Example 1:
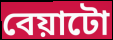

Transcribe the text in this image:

বেয়াটো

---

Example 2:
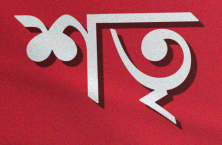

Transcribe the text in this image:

শতৃ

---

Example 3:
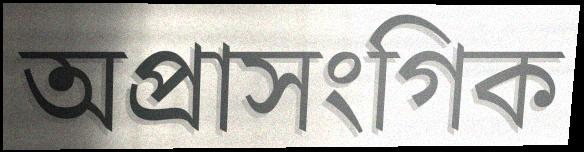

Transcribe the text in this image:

অপ্ৰাসংগিক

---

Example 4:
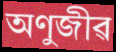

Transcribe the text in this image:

অণুজীৱ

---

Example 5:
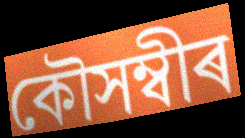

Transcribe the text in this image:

কৌসম্বীৰ